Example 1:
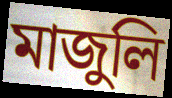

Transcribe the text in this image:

মাজুলি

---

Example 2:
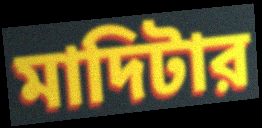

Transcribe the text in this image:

মাদিটার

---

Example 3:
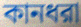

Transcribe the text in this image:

কানধরা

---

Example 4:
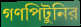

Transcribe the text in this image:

গণপিটুনির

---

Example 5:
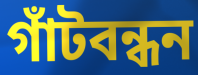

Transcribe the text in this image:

গাঁটবন্ধন